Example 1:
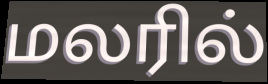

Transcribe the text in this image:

மலரில்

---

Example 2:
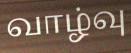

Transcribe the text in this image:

வாழ்வு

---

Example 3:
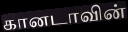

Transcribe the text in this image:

கானடாவின்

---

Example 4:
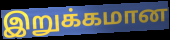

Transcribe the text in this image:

இறுக்கமான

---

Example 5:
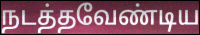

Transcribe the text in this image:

நடத்தவேண்டிய